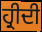
ਹ੍ਰੀਦੀ